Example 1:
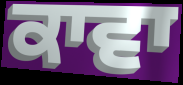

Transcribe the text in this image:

ਕਾਵਾ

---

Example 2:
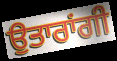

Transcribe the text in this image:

ਉਤਾਰਾਂਗੀ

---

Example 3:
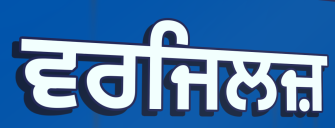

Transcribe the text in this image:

ਵਰਜਿਲਜ਼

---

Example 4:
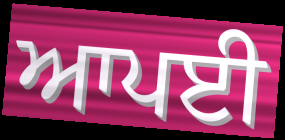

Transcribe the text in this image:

ਆਪਈ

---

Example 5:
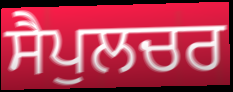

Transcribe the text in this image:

ਸੈਪੁਲਚਰ